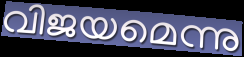
വിജയമെന്നു